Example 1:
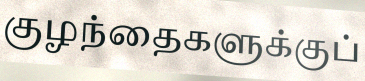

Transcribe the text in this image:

குழந்தைகளுக்குப்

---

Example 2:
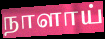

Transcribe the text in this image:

நாளாய்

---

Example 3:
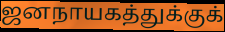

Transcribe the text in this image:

ஜனநாயகத்துக்குக்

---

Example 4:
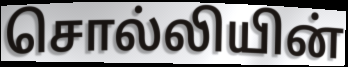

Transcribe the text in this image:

சொல்லியின்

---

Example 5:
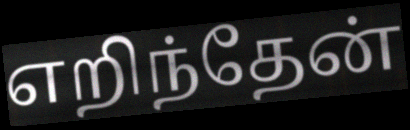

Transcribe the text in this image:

எறிந்தேன்